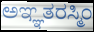
ಅಞ್ಞತರಸ್ಮಿಂ